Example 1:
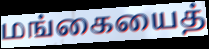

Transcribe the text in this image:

மங்கையைத்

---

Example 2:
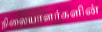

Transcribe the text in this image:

நிலையாளர்களின்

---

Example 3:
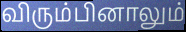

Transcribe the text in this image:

விரும்பினாலும்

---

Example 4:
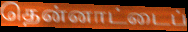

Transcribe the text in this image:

தென்னாட்டைப்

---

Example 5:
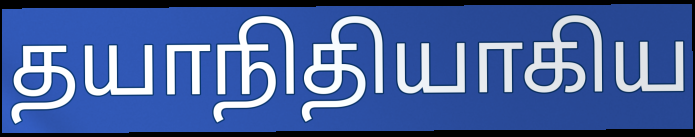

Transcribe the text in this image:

தயாநிதியாகிய